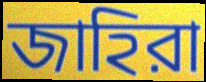
জাহিরা